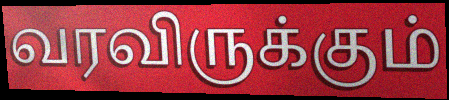
வரவிருக்கும்